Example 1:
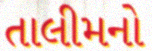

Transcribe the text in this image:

તાલીમનો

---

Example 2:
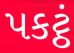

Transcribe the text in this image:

પકટ્ઠં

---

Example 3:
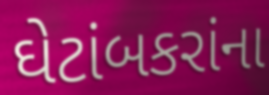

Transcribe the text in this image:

ઘેટાંબકરાંના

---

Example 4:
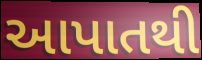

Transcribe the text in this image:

આપાતથી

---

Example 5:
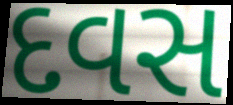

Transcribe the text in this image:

દવસ